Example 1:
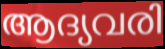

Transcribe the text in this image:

ആദ്യവരി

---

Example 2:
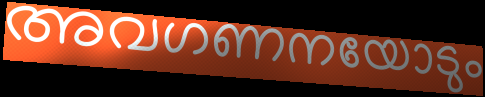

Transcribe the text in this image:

അവഗണനയോടും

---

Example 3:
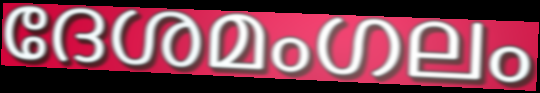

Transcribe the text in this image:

ദേശമംഗലം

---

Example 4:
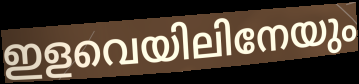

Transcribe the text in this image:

ഇളവെയിലിനേയും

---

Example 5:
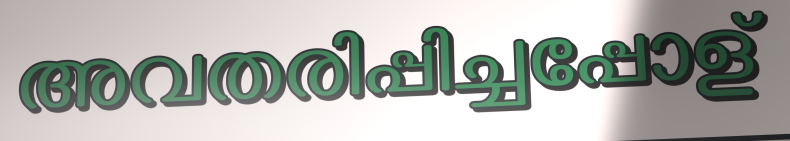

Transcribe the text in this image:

അവതരിപ്പിച്ചപ്പോള്